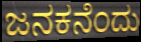
ಜನಕನೆಂದು